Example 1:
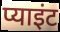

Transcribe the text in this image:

प्याइंट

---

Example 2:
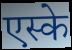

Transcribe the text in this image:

एस्के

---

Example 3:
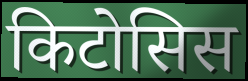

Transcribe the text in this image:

किटोसिस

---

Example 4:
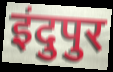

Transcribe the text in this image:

इंदुपुर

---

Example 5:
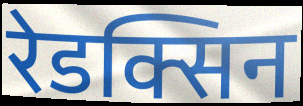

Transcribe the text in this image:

रेडक्सिन